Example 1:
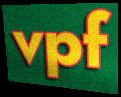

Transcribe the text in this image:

vpf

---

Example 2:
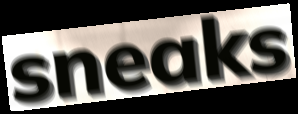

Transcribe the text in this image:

sneaks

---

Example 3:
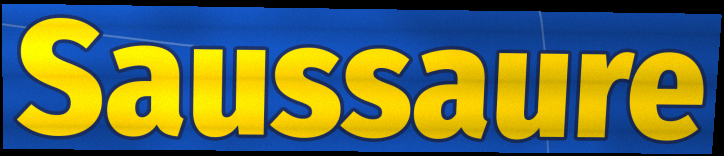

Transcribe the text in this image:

Saussaure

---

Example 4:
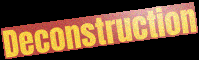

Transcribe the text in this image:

Deconstruction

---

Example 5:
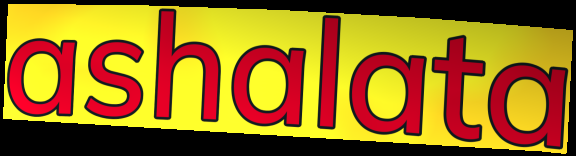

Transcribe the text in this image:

ashalata